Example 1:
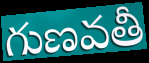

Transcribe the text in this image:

గుణవతీ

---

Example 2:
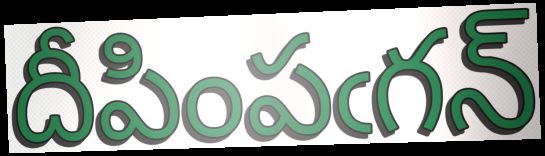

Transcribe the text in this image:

దీపింపఁగన్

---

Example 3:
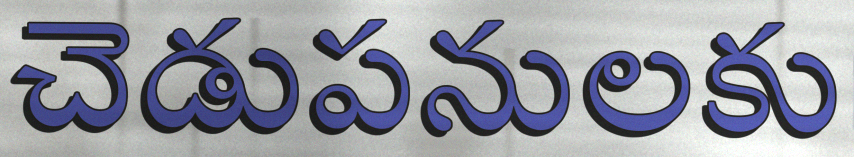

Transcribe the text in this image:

చెడుపనులకు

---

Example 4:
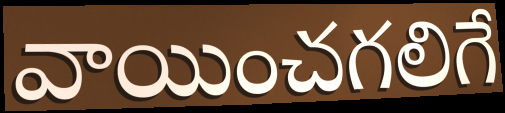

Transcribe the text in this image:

వాయించగలిగే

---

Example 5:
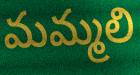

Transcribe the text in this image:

మమ్మలి